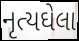
નૃત્યઘેલા